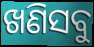
ଖଣିସବୁ